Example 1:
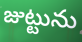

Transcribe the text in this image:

జుట్టును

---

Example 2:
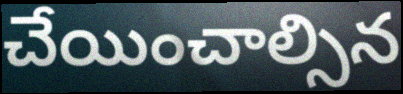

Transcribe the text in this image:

చేయించాల్సిన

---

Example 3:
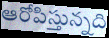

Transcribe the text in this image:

ఆరోపిస్తున్నది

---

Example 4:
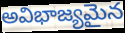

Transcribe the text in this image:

అవిభాజ్యమైన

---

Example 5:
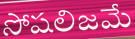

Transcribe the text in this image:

సోషలిజమే